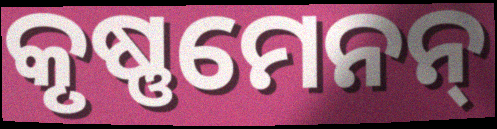
କୃଷ୍ଣମେନନ୍